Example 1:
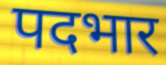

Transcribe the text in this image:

पदभार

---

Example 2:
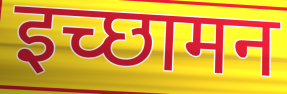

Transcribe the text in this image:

इच्छामन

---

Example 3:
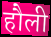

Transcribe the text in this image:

हौली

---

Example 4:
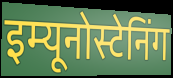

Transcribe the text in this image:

इम्यूनोस्टेनिंग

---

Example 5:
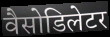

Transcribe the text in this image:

वैसोडिलेटर